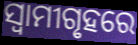
ସ୍ଵାମୀଗୃହରେ